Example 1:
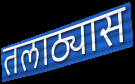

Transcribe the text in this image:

तलाठ्यास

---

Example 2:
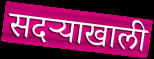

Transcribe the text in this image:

सदऱ्याखाली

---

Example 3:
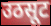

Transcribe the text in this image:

उठसूट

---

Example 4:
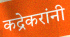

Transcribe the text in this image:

कद्रेकरांनी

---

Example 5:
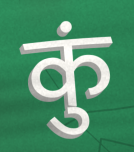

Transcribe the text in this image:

कुं